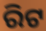
ରିଟ